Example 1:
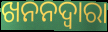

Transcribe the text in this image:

ଖନନଦ୍ୱାରା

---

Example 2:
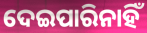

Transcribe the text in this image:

ଦେଇପାରିନାହିଁ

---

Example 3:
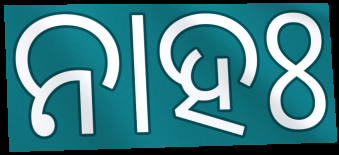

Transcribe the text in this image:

ନାହଃ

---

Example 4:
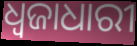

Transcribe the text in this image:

ଧ୍ବଜାଧାରୀ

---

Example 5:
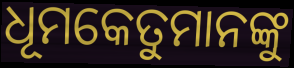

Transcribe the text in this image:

ଧୂମକେତୁମାନଙ୍କୁ